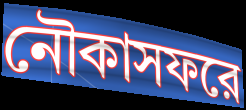
নৌকাসফরে